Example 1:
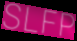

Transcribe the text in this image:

SLFP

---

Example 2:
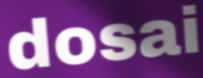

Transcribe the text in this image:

dosai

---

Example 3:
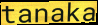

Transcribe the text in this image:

tanaka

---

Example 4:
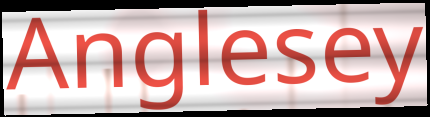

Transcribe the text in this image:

Anglesey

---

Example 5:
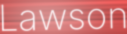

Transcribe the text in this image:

Lawson